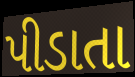
પીડાતા